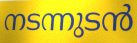
നടന്നുടൻ